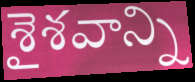
శైశవాన్ని